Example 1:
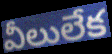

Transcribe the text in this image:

వీలులేక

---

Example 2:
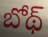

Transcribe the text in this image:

బోథ్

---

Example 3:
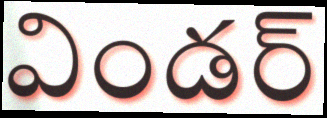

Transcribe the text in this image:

విండర్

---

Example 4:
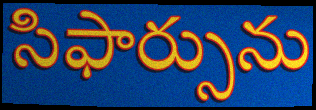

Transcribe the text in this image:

సిఫార్సును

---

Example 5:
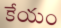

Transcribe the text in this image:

కేయం